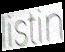
listin